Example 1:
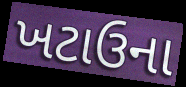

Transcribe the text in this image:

ખટાઉના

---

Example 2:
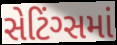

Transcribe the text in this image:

સેટિંગ્સમાં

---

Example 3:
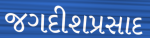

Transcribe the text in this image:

જગદીશપ્રસાદ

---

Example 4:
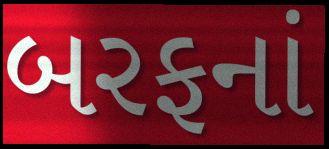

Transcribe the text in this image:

બરફનાં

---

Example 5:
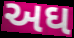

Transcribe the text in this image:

અઘ